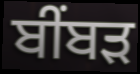
ਬੀਂਬੜ